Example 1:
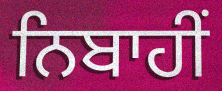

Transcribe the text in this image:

ਨਿਬਾਹੀਂ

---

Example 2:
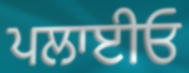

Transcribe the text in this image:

ਪਲਾਈਓ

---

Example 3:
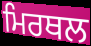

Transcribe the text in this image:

ਮਿਰਥਲ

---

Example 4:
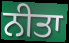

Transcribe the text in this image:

ਨੀਤਾ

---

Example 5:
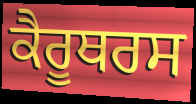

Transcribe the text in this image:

ਕੈਰੂਥਰਸ